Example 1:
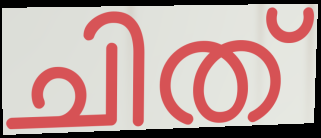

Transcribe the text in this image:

ചിത്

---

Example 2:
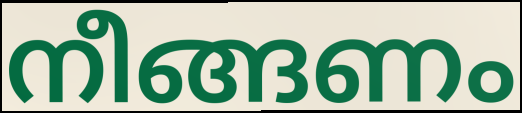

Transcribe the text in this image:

നീങ്ങണം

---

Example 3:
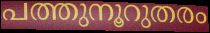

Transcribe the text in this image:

പത്തുനൂറുതരം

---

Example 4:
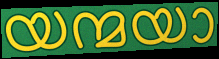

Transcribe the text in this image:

യന്മയാ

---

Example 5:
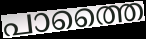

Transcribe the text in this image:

പാത്തൈ